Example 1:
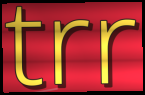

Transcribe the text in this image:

trr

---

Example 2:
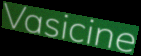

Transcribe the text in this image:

Vasicine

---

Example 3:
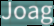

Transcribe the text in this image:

Joag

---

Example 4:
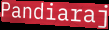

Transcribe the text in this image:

Pandiaraj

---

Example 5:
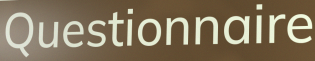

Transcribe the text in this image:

Questionnaire